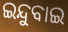
ଇନ୍ଦୁବାଇ